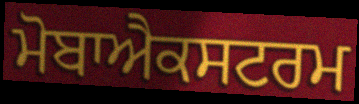
ਮੋਬਾਐਕਸਟਰਮ